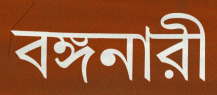
বঙ্গনারী